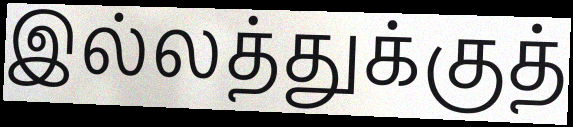
இல்லத்துக்குத்